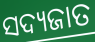
ସଦ୍ୟଜାତ